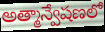
అత్మాన్వేషణలో